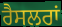
ਰੈਸਲਰਾਂ